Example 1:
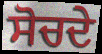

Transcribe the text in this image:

ਸੋਚਦੇ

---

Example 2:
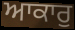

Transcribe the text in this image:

ਆਕਾਰੁ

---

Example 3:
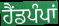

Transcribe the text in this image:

ਹੈਂਡਪੰਪਾਂ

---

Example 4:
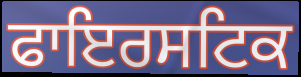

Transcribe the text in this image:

ਫਾਇਰਸਟਿਕ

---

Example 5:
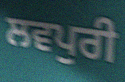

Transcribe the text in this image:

ਲਵਪੁਰੀ